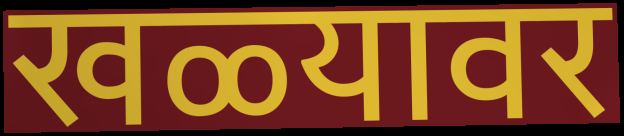
खळ्यावर